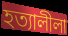
হত্যালীলা